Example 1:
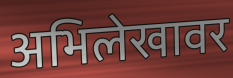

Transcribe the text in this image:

अभिलेखावर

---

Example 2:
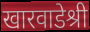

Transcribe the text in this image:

खारवाडेश्री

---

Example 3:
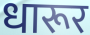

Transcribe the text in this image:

धारूर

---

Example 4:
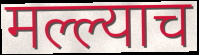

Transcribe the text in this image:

मल्ल्याच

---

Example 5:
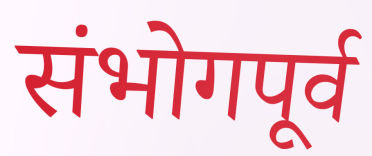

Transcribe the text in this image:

संभोगपूर्व